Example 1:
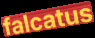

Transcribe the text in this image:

falcatus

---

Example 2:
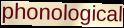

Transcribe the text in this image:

phonological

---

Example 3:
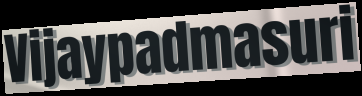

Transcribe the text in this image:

Vijaypadmasuri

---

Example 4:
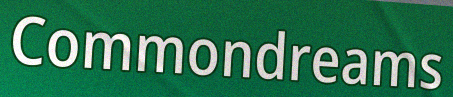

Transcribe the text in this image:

Commondreams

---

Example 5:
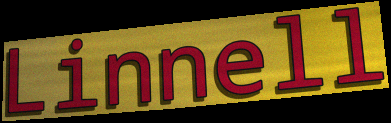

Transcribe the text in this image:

Linnell